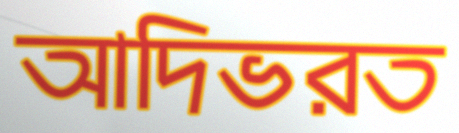
আদিভরত